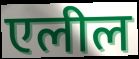
एलील